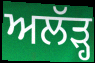
ਅਲੱੜ੍ਹ